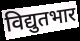
विद्युतभार